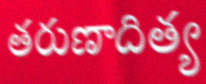
తరుణాదిత్య